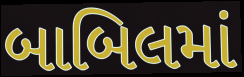
બાબિલમાં